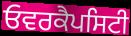
ਓਵਰਕੈਪਸਿਟੀ